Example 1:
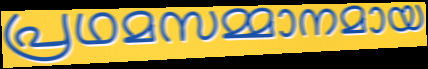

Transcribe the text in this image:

പ്രഥമസമ്മാനമായ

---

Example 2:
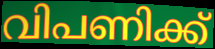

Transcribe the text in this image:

വിപണിക്ക്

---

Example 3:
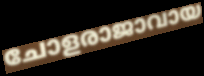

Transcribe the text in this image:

ചോളരാജാവായ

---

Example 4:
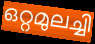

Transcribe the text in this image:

ഒറ്റമുലച്ചി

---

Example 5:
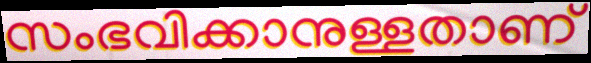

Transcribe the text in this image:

സംഭവിക്കാനുള്ളതാണ്